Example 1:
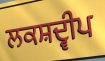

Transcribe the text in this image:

ਲਕਸ਼ਦ੍ਵੀਪ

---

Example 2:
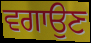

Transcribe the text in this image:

ਵਗਾਉਣ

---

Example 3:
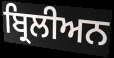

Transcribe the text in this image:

ਬ੍ਰਿਲੀਅਨ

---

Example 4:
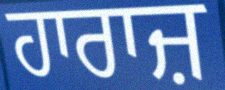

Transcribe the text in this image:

ਹਾਰਾਜ਼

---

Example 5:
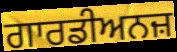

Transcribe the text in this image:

ਗਾਰਡੀਅਨਜ਼